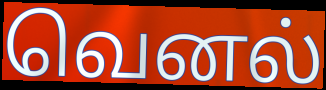
வெனல்